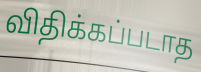
விதிக்கப்படாத